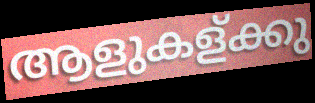
ആളുകള്ക്കു